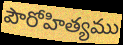
పౌరోహిత్యము